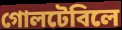
গোলটেবিলে